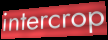
intercrop